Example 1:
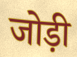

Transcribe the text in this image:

जोड़ी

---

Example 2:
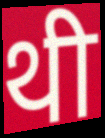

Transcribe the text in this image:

थी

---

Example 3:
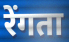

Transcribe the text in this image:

रेंगता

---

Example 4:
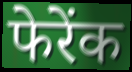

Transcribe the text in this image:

फेरेंक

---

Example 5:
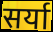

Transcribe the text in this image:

सर्या